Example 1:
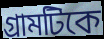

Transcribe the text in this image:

গ্রামটিকে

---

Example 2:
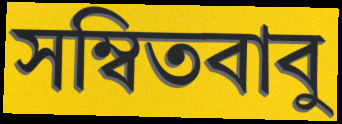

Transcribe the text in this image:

সম্বিতবাবু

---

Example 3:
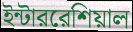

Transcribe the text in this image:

ইন্টাররেশিয়াল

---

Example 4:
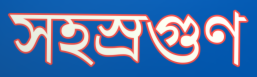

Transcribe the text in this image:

সহস্রগুণ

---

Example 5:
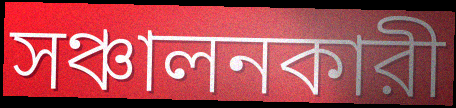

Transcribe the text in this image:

সঞ্চালনকারী